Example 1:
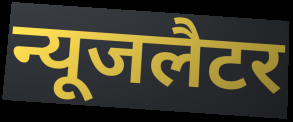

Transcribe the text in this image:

न्यूजलैटर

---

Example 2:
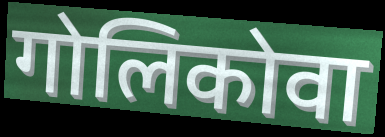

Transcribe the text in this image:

गोलिकोवा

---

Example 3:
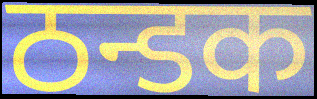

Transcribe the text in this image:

ठन्डक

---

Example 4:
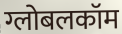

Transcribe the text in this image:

ग्लोबलकॉम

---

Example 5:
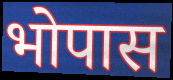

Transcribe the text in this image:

भोपास